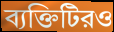
ব্যক্তিটিরও